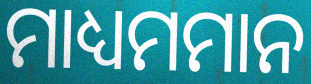
ମାଧ୍ୟମମାନ